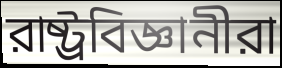
রাষ্ট্রবিজ্ঞানীরা